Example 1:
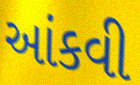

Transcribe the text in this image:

આંકવી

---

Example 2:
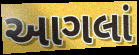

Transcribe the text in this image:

આગલાં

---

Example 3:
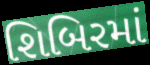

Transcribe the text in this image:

શિબિરમાં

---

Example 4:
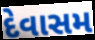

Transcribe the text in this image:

દેવાસમ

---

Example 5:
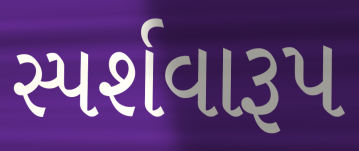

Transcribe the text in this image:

સ્પર્શવારૂપ